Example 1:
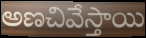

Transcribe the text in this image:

అణచివేస్తాయి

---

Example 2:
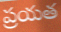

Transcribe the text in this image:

ప్రయత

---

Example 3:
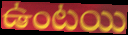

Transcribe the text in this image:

ఉంటయి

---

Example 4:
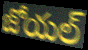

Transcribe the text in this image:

జోయల్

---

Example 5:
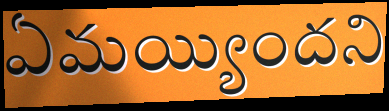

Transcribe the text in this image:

ఏమయ్యిందని